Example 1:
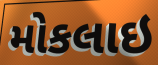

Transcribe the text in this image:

મોકલાઇ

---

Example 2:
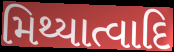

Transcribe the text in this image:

મિથ્યાત્વાદિ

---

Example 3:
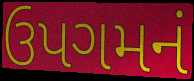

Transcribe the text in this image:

ઉપગમનં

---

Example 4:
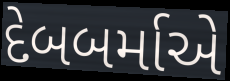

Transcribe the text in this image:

દેબબર્માએ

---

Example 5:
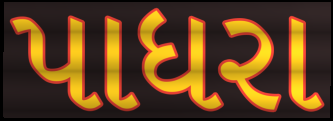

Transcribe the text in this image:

પાધરા